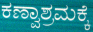
ಕಣ್ವಾಶ್ರಮಕ್ಕೆ